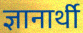
ज्ञानार्थी